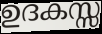
ഉദകസ്സ